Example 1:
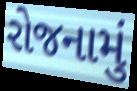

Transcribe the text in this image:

રોજનામું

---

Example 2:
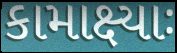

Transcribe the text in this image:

કામાક્ષ્યાઃ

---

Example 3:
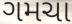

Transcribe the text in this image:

ગમચા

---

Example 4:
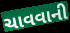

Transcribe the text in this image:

ચાવવાની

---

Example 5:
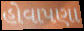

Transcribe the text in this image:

હોવાપણા